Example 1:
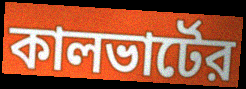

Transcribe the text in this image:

কালভার্টের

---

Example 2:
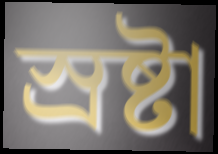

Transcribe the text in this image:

স্রষ্টা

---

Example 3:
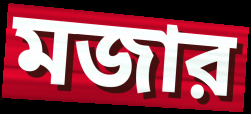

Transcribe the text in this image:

মজার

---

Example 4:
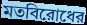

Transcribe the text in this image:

মতবিরোধের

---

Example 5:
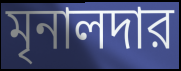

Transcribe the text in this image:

মৃনালদার